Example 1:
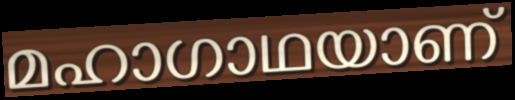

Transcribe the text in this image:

മഹാഗാഥയാണ്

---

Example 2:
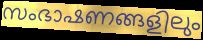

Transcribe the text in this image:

സംഭാഷണങ്ങളിലും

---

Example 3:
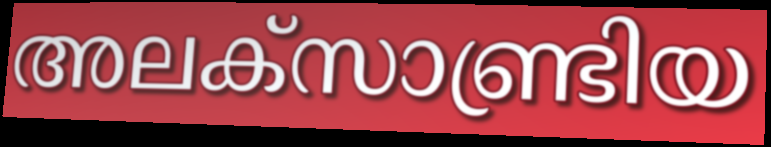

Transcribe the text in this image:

അലക്സാണ്ട്രിയ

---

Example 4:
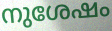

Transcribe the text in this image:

നുശേഷം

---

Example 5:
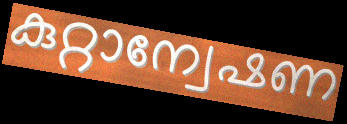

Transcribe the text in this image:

കുറ്റാന്വേഷണ